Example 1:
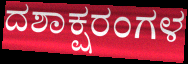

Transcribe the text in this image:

ದಶಾಕ್ಷರಂಗಳ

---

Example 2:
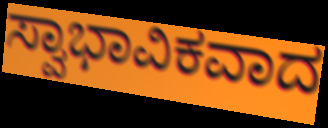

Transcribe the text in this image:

ಸ್ವಾಭಾವಿಕವಾದ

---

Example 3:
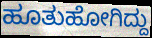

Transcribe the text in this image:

ಹೂತುಹೋಗಿದ್ದು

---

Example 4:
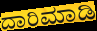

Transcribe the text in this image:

ದಾರಿಮಾಡಿ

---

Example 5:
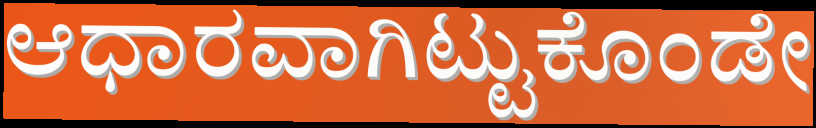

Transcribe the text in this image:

ಆಧಾರವಾಗಿಟ್ಟುಕೊಂಡೇ